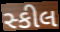
સ્કીલ